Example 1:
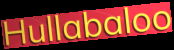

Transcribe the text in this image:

Hullabaloo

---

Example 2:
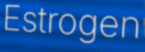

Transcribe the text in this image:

Estrogen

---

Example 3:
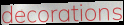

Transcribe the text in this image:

decorations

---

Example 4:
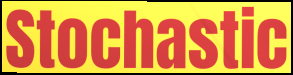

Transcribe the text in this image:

Stochastic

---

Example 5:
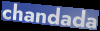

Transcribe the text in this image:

chandada